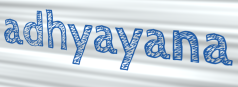
adhyayana